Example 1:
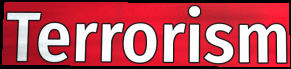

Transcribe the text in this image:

Terrorism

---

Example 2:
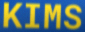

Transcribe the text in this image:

KIMS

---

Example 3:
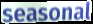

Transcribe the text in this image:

seasonal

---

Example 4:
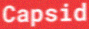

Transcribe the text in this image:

Capsid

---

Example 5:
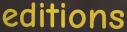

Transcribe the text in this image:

editions